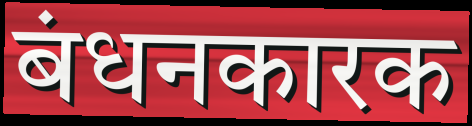
बंधनकारक